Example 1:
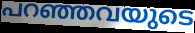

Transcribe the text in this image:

പറഞ്ഞവയുടെ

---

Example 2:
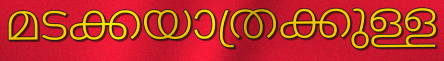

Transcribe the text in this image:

മടക്കയാത്രക്കുള്ള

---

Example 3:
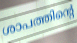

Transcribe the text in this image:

ശാപത്തിന്റെ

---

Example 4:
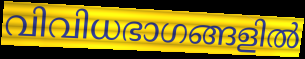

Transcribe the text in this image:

വിവിധഭാഗങ്ങളിൽ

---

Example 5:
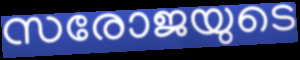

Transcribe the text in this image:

സരോജയുടെ